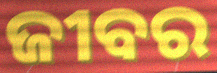
ଜୀବର